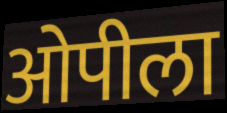
ओपीला